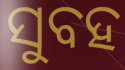
ସୁବହ